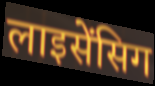
लाइसेंसिग